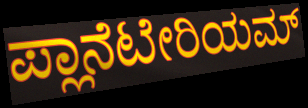
ಪ್ಲಾನೆಟೇರಿಯಮ್